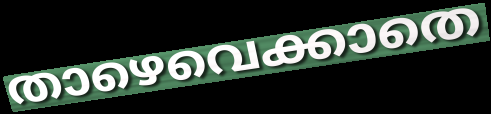
താഴെവെക്കാതെ